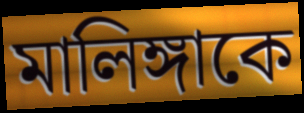
মালিঙ্গাকে